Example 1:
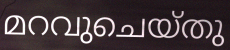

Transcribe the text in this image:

മറവുചെയ്തു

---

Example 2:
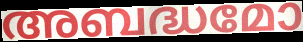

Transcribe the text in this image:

അബദ്ധമോ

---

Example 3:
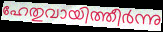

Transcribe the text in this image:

ഹേതുവായിത്തീർന്നു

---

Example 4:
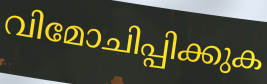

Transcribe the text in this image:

വിമോചിപ്പിക്കുക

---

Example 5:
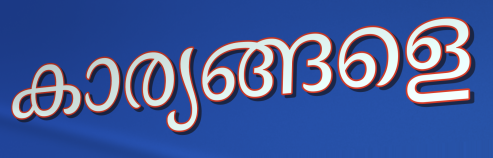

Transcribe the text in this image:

കാര്യങ്ങളെ